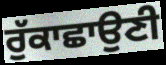
ਰੁੱਕਾਛਾਉਣੀ